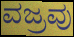
ವಜ್ರವು